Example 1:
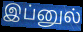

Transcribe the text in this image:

இப்னுல்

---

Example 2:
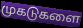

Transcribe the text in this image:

முகடுகளை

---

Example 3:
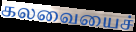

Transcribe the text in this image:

கலவையைச்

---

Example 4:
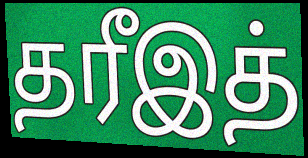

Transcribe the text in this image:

தரீஇத்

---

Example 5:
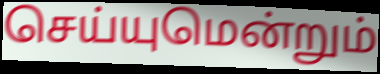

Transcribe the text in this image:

செய்யுமென்றும்